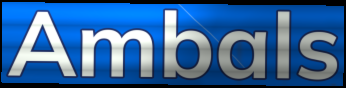
Ambals